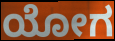
ಯೋಗ